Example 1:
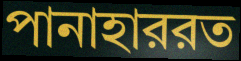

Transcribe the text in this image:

পানাহাররত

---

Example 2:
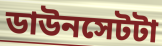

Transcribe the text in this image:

ডাউনসেটটা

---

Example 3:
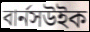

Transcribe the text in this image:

বার্নসউইক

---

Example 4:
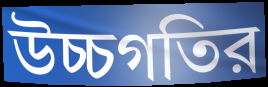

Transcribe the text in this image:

উচ্চগতির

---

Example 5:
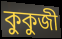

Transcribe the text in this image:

কুকুজী